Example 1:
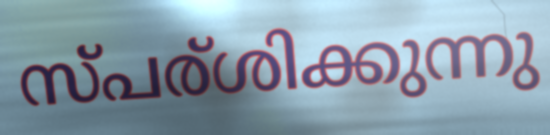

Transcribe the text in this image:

സ്പര്ശിക്കുന്നു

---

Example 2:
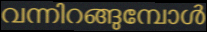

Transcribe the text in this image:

വന്നിറങ്ങുമ്പോൾ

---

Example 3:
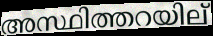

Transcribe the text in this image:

അസ്ഥിത്തറയില്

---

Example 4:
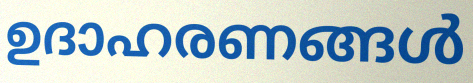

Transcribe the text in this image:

ഉദാഹരണങ്ങൾ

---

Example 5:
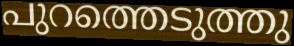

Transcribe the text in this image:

പുറത്തെടുത്തു